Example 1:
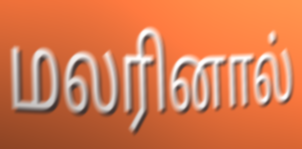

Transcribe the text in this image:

மலரினால்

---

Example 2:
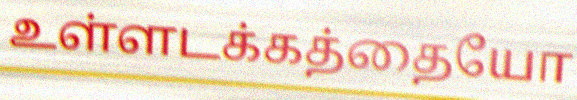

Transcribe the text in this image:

உள்ளடக்கத்தையோ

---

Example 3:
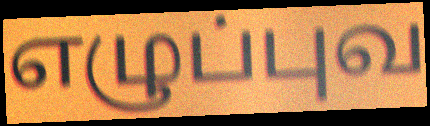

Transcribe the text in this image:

எழுப்புவ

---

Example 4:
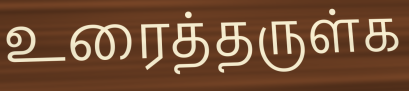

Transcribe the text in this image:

உரைத்தருள்க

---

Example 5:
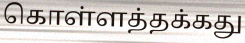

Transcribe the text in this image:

கொள்ளத்தக்கது